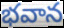
భవాన